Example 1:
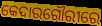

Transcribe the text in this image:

କେଦାରଗୌରୀରେ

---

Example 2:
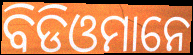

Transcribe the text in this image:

ବିଡିଓମାନେ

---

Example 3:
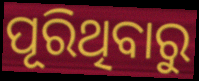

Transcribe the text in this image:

ପୂରିଥିବାରୁ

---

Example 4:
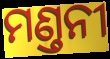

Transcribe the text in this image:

ମଣ୍ତନୀ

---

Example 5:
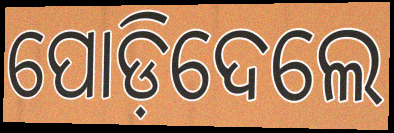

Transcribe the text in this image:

ପୋଡ଼ିଦେଲେ